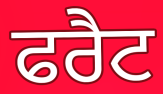
ਫਰੈਟ